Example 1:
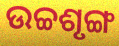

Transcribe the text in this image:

ଉଚ୍ଚଶୃଙ୍ଗ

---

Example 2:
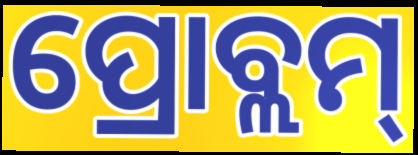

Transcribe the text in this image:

ପ୍ରୋବ୍ଲମ୍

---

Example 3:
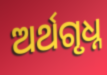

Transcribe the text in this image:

ଅର୍ଥଗୃଧ୍ନ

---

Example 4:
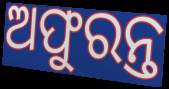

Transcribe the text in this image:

ଅଫୁରନ୍ତ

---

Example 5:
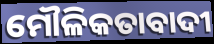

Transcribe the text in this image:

ମୌଳିକତାବାଦୀ